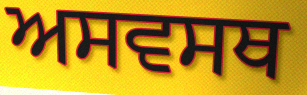
ਅਸਵਸਥ